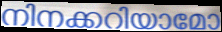
നിനക്കറിയാമോ